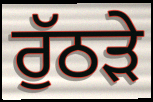
ਰੁੱਠੜੇ